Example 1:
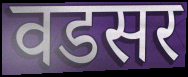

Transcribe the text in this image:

वडसर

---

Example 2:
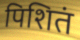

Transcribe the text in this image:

पिशितं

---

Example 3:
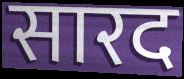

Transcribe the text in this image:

सारद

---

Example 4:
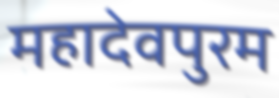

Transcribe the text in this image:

महादेवपुरम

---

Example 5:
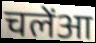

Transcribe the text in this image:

चलेंआ